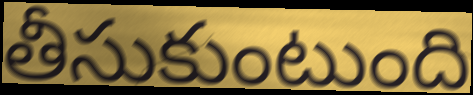
తీసుకుంటుంది